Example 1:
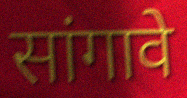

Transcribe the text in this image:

सांगावे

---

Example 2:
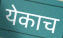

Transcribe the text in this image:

येकाच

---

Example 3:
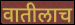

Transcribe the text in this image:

वातीलाच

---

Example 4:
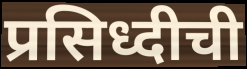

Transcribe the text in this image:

प्रसिध्दीची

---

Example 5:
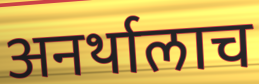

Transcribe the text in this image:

अनर्थालाच